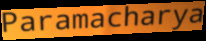
Paramacharya